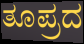
ತೂಪ್ರದ